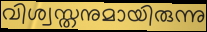
വിശ്വസ്തനുമായിരുന്നു